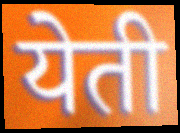
येती